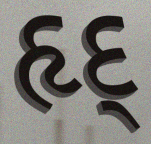
હૃદ્